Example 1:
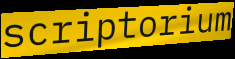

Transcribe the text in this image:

scriptorium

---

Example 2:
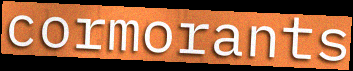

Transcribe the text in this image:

cormorants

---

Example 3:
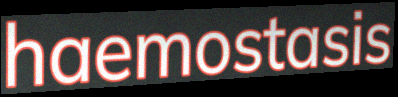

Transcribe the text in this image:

haemostasis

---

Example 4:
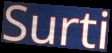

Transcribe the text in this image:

Surti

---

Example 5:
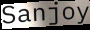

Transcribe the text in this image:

Sanjoy